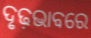
ଦୃଢ଼ଭାବରେ